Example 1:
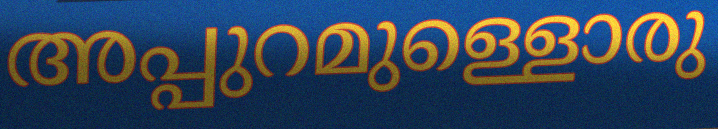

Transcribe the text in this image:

അപ്പുറമുള്ളൊരു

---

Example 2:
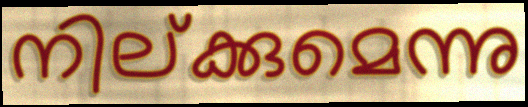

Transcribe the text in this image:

നില്ക്കുമെന്നു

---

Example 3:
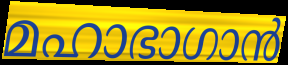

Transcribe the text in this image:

മഹാഭാഗാൻ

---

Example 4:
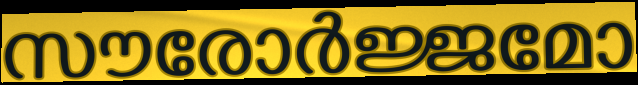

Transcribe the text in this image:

സൗരോർജ്ജമോ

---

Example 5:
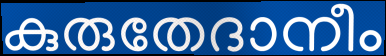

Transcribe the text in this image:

കുരുതേദാനീം